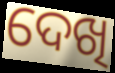
ଦେଖି